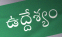
ఉద్దేశ్యం